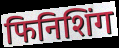
फिनिशिंग